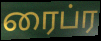
ரைப்ர